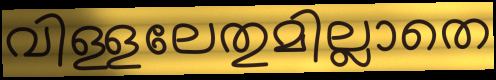
വിള്ളലേതുമില്ലാതെ